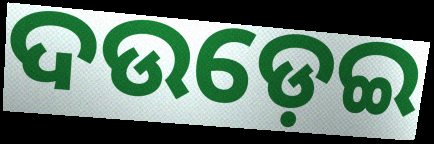
ଦଉଡ଼େଇ